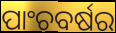
ପାଂଚବର୍ଷର